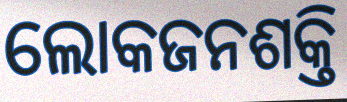
ଲୋକଜନଶକ୍ତି